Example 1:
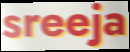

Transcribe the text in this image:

sreeja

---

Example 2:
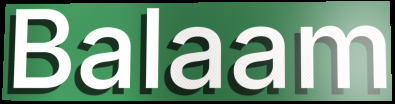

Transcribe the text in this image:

Balaam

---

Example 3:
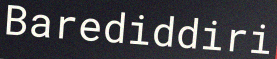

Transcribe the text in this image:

Barediddiri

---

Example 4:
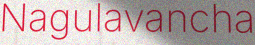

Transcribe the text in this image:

Nagulavancha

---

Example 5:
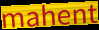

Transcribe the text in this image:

mahent